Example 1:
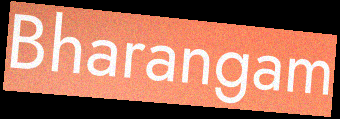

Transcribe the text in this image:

Bharangam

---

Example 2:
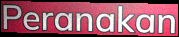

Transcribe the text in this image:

Peranakan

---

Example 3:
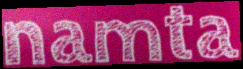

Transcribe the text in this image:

namta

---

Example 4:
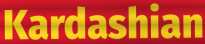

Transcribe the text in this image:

Kardashian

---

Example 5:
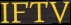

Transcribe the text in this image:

IFTV